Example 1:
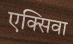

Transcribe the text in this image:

एक्सिवा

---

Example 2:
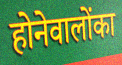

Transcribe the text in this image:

होनेवालोंका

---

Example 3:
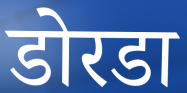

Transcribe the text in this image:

डोरडा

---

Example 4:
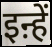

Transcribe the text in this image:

इऩ्हें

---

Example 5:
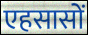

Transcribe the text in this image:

एहसासों